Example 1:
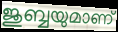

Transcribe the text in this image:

ജുബ്ബയുമാണ്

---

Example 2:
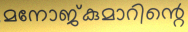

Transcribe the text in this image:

മനോജ്കുമാറിന്റെ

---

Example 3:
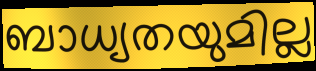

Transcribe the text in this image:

ബാധ്യതയുമില്ല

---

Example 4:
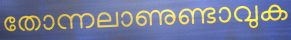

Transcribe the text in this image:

തോന്നലാണുണ്ടാവുക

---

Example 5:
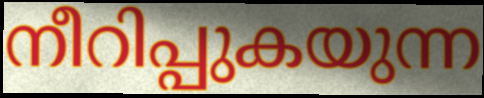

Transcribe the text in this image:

നീറിപ്പുകയുന്ന